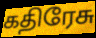
கதிரேசு